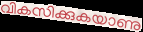
വികസിക്കുകയാണു